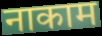
नाकाम